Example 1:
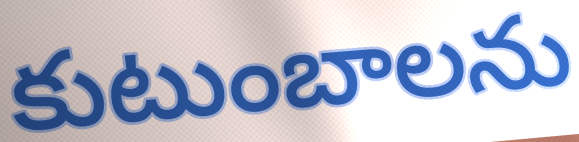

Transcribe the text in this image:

కుటుంబాలను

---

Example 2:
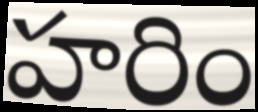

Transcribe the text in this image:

హరిం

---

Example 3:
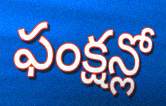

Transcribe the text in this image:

ఫంక్షన్లో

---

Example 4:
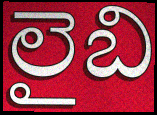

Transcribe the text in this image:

లైబి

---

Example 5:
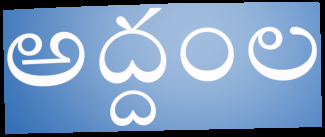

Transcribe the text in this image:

అద్దంల